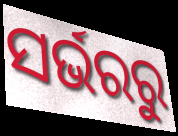
ସର୍ଭରରୁ